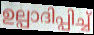
ഉല്പാദിപ്പിച്ച്